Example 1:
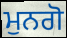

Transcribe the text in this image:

ਮੁਨਗੋ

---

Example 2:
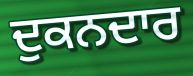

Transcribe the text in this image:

ਦੁਕਨਦਾਰ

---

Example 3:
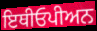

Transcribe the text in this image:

ਇਥੀਓਪੀਅਨ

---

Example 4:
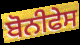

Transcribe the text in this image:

ਬੋਨੀਫੇਸ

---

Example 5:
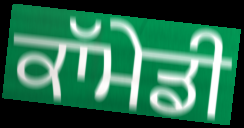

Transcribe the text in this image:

ਕਾੱਮੇਡੀ